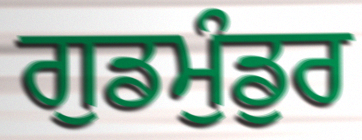
ਗੁਡਮੁੰਡੁਰ